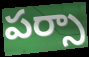
పర్సా